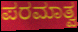
ಪರಮಾತ್ವ